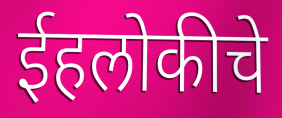
ईहलोकीचे